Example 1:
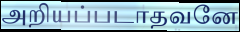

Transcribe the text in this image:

அறியப்படாதவனே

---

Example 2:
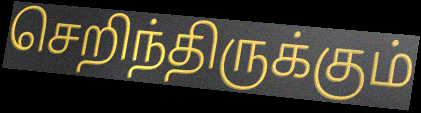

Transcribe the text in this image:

செறிந்திருக்கும்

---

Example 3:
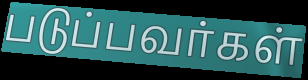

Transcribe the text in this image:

படுப்பவர்கள்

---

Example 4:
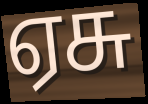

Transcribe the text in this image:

ஏசு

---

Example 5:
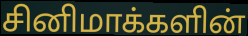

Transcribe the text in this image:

சினிமாக்களின்